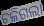
ଚଳିଗଲା